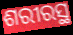
ଶରୀରସ୍ଥ